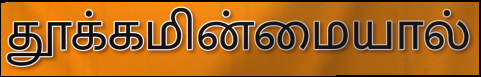
தூக்கமின்மையால்